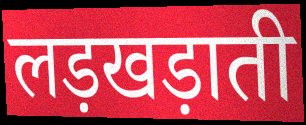
लड़खड़ाती